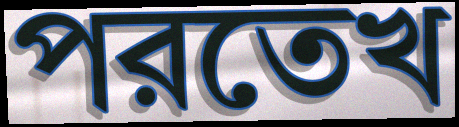
পরতেখ